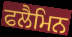
ਫਲੈਮਿਨ